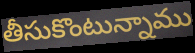
తీసుకొంటున్నాము